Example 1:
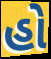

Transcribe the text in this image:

હો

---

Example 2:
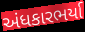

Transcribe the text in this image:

અંધકારભર્યા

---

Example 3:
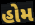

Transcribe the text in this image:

હોમ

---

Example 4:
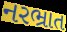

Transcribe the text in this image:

નરભ્રાત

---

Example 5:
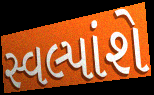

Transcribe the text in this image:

સ્વલ્પાંશે